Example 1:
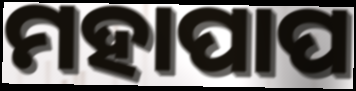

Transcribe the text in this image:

ମହାପାପ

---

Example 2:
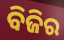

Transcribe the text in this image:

ବିଜିର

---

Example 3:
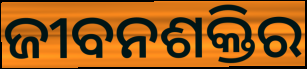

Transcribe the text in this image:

ଜୀବନଶକ୍ତିର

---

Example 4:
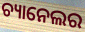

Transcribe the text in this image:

ଚ୍ୟାନେଲର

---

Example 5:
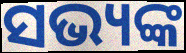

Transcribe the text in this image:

ସଭ୍ୟଙ୍କ